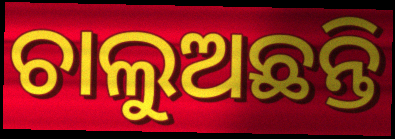
ଚାଲୁଅଛନ୍ତି